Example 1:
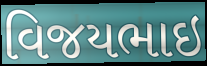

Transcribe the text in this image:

વિજયભાઇ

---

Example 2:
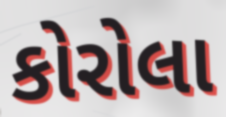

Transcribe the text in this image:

કોરોલા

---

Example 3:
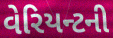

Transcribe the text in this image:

વેરિયન્ટની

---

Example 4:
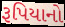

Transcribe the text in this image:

રૂપિયાનો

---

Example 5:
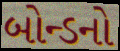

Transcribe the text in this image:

બોન્ડનો